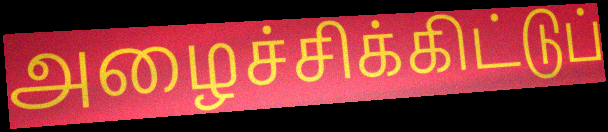
அழைச்சிக்கிட்டுப்